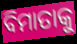
ବିମାତାକୁ